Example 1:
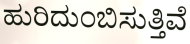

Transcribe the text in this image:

ಹುರಿದುಂಬಿಸುತ್ತಿವೆ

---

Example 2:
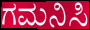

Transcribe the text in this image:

ಗಮನಿಸಿ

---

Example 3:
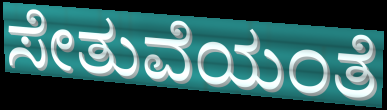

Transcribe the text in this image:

ಸೇತುವೆಯಂತೆ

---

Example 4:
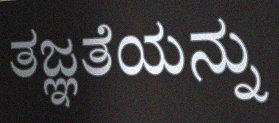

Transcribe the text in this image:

ತಜ್ಞತೆಯನ್ನು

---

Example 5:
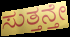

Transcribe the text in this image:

ಸುತ್ತನ್ತೇ